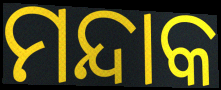
ମନ୍ଦାକ